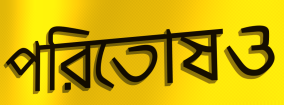
পরিতোষও